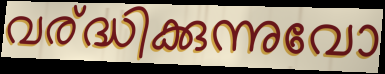
വര്ദ്ധിക്കുന്നുവോ